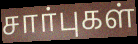
சார்புகள்